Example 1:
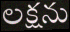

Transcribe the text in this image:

లక్షను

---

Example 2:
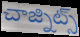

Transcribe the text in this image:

చాజ్నిట్స్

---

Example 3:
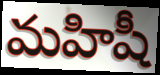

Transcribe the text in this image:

మహిషీ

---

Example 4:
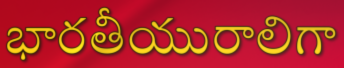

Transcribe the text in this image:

భారతీయురాలిగా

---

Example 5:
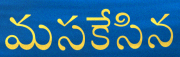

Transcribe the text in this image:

మసకేసిన